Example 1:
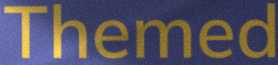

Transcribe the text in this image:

Themed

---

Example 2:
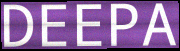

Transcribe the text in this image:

DEEPA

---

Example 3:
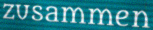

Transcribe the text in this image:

zusammen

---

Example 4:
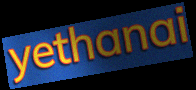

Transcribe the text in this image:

yethanai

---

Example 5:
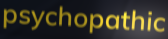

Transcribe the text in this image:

psychopathic